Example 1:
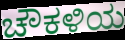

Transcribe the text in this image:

ಚೌಕಳಿಯ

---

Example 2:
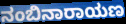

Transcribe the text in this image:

ನಂಬಿನಾರಾಯಣ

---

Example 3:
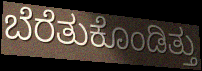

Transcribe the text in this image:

ಬೆರೆತುಕೊಂಡಿತ್ತು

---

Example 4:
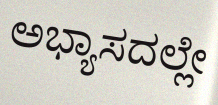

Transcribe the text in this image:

ಅಭ್ಯಾಸದಲ್ಲೇ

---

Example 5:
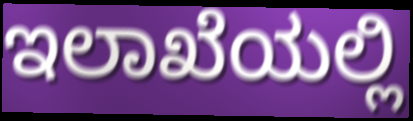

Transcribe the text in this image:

ಇಲಾಖೆಯಲ್ಲಿ